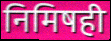
निमिषही